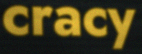
cracy